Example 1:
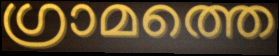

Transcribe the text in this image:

ഗ്രാമത്തെ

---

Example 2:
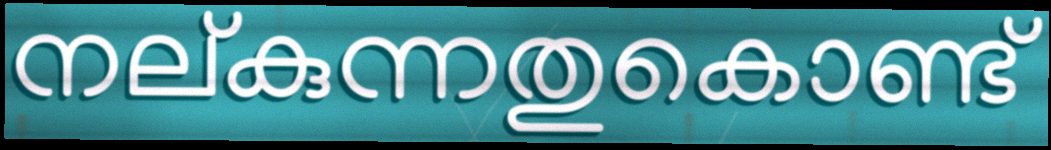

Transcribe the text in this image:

നല്കുന്നതുകൊണ്ട്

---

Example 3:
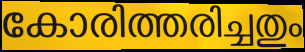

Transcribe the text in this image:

കോരിത്തരിച്ചതും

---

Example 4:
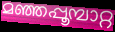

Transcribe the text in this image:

മഞ്ഞപ്പൂമ്പാറ്റ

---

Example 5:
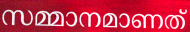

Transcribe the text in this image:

സമ്മാനമാണത്